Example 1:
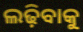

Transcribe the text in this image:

ଲଢ଼ିବାକୁ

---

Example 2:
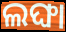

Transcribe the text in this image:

ଲଙ୍ଘା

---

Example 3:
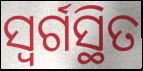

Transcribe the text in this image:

ସ୍ୱର୍ଗସ୍ଥିତ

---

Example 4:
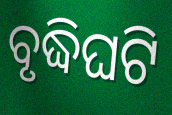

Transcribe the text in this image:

ବୃଦ୍ଧିଘଟି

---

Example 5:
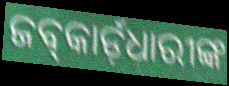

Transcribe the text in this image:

ଜବ୍‍କାର୍ଡ଼ଧାରୀଙ୍କ